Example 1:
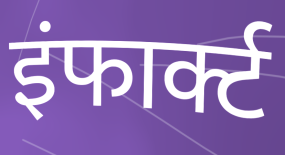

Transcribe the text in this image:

इंफार्क्ट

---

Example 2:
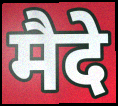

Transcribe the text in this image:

मैदे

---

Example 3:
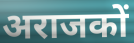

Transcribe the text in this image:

अराजकों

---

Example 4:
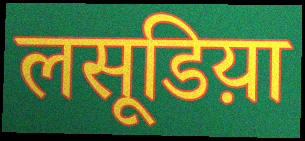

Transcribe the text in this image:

लसूडिय़ा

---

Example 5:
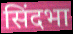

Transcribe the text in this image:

सिंदभा